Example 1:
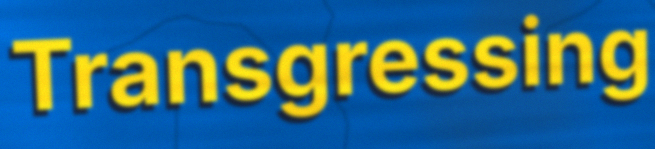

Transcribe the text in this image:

Transgressing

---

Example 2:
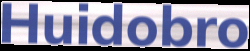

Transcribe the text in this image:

Huidobro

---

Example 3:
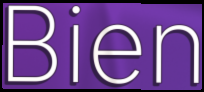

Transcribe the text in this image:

Bien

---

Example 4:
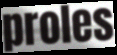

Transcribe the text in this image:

proles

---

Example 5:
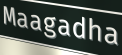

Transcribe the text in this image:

Maagadha